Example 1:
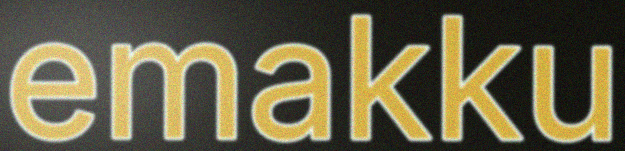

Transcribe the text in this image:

emakku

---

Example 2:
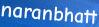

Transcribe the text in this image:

naranbhatt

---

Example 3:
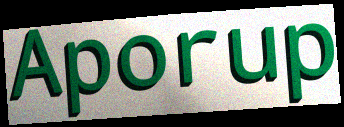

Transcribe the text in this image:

Aporup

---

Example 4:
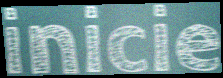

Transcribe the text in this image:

inicie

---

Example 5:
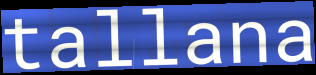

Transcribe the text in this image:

tallana